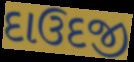
દાઉદજી